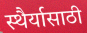
स्थैर्यासाठी